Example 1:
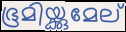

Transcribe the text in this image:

ഭൂമിയ്ക്കുമേല്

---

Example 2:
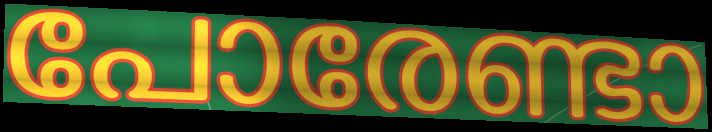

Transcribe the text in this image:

പോരേണ്ടാ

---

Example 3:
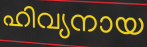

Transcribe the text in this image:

ഹിവ്യനായ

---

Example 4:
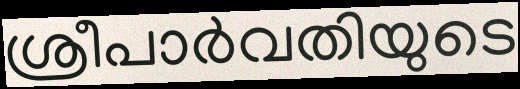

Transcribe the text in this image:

ശ്രീപാർവതിയുടെ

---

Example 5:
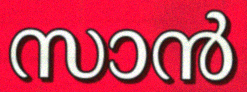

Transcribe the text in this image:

സാൻ